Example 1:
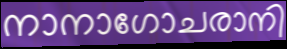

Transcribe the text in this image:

നാനാഗോചരാനി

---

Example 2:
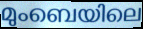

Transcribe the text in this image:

മുംബെയിലെ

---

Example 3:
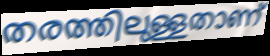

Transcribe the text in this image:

തരത്തിലുള്ളതാണ്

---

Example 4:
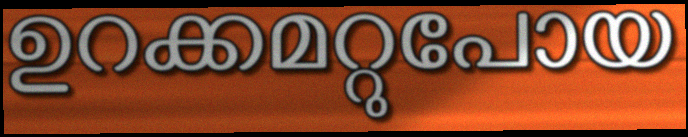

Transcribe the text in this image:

ഉറക്കമറ്റുപോയ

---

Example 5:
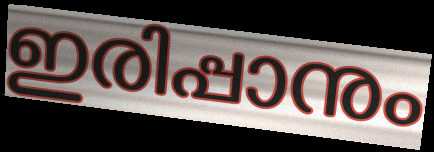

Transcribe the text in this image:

ഇരിപ്പാനും